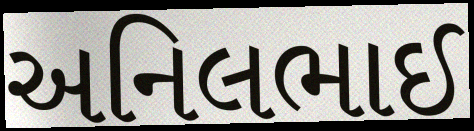
અનિલભાઈ